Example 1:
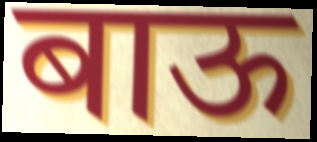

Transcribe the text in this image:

बाऊ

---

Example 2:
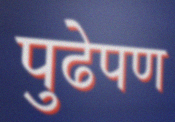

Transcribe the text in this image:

पुढेपण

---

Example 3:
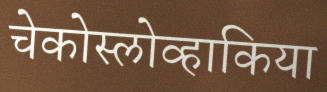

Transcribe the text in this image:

चेकोस्लोव्हाकिया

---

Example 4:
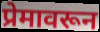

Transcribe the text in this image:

प्रेमावरून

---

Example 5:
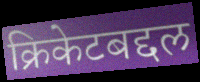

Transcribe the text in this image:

क्रिकेटबद्दल